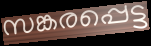
സങ്കരപ്പെട്ട